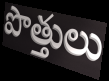
పొత్తులు